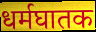
धर्मघातक